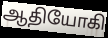
ஆதியோகி